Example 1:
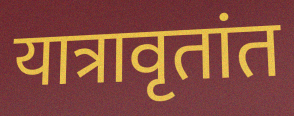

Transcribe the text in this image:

यात्रावृतांत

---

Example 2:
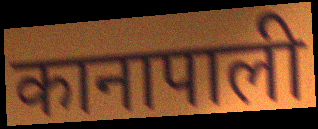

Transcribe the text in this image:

कानापाली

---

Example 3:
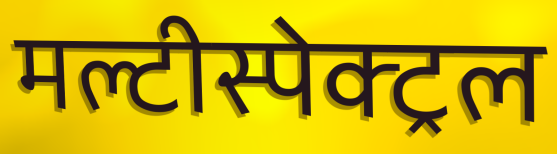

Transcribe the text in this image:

मल्टीस्पेक्ट्रल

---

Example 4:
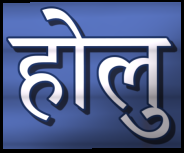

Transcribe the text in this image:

होलु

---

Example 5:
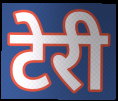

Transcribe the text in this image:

टेरी